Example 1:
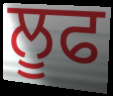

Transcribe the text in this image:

ਲੂਫ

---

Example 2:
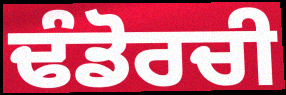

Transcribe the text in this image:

ਢੰਡੋਰਚੀ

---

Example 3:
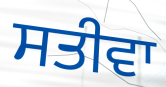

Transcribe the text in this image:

ਸਤੀਵਾ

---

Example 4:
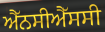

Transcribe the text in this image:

ਐੱਨਸੀਐੱਸਸੀ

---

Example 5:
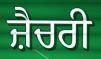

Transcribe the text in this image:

ਜ਼ੈਚਰੀ